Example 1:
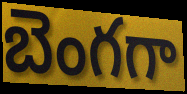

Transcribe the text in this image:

బెంగగా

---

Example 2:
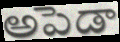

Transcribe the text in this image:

అపెడా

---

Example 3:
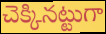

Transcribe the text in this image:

చెక్కినట్టుగా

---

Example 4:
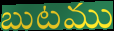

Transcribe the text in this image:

బుటము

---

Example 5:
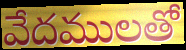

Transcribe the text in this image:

వేదములతో